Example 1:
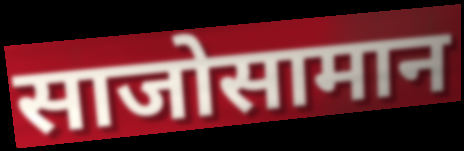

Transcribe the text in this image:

साजोसामान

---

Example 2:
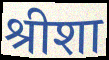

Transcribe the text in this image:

श्रीशा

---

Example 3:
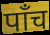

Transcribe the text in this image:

पॉंच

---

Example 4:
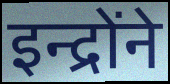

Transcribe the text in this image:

इन्द्रोंने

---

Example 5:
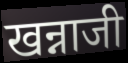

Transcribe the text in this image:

खन्नाजी